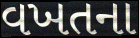
વખતના